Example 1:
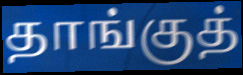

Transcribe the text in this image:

தாங்குத்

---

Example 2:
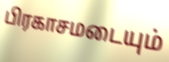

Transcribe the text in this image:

பிரகாசமடையும்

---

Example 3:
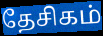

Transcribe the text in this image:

தேசிகம்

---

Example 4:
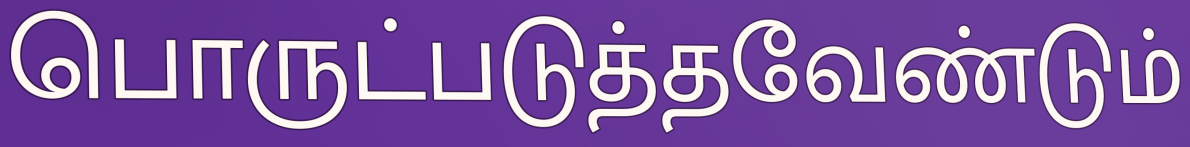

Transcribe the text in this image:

பொருட்படுத்தவேண்டும்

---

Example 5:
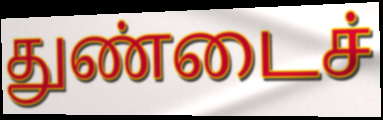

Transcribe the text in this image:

துண்டைச்